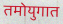
तमोयुगात